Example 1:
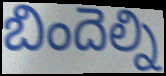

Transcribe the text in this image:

బిందెల్ని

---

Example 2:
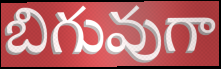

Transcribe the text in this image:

బిగువుగా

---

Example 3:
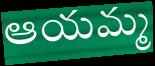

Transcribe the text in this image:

ఆయమ్మ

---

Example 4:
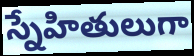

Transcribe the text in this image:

స్నేహితులుగా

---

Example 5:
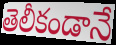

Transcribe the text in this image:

తెలీకండానే